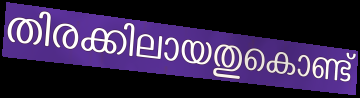
തിരക്കിലായതുകൊണ്ട്